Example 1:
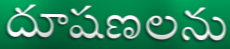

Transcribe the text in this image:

దూషణలను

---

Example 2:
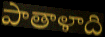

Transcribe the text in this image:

పాతాళాది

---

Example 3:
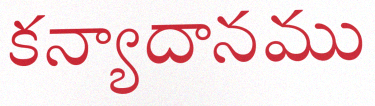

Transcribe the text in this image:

కన్యాదానము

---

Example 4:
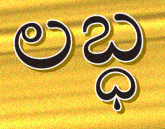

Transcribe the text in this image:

లబ్ధ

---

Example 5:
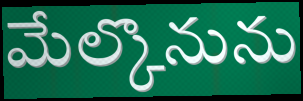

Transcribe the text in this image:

మేల్కొనును